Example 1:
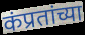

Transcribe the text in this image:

कंप्रतांच्या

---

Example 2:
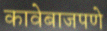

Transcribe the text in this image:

कावेबाजपणे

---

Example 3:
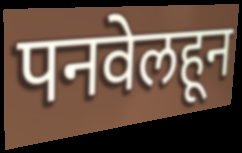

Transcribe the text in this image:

पनवेलहून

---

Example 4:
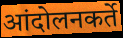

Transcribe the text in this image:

आंदोलनकर्ते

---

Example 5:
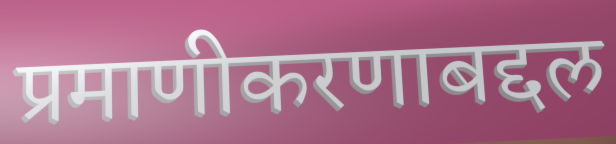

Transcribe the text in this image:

प्रमाणीकरणाबद्दल